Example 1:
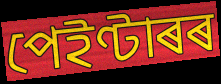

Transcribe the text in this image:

পেইণ্টাৰৰ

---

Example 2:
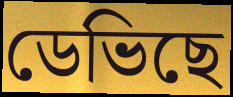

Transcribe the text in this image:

ডেভিছে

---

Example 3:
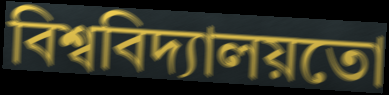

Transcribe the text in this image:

বিশ্ববিদ্যালয়তো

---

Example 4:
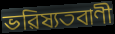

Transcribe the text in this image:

ভৱিষ্যতবাণী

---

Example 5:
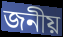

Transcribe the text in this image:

জনীয়